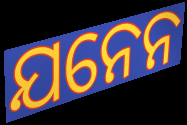
ଯନେନ